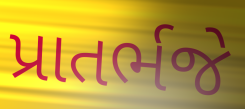
પ્રાતર્ભજે